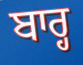
ਬਾਰ੍ਹ